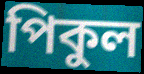
পিকুল